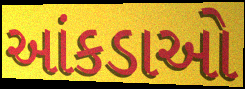
આંકડાઓ